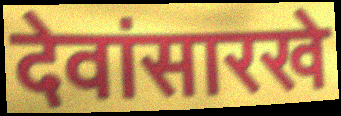
देवांसारखे